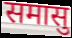
समासु